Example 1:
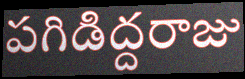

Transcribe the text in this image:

పగిడిద్దరాజు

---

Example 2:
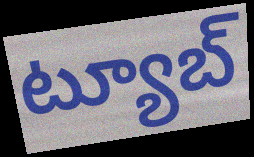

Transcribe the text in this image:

ట్యూబ్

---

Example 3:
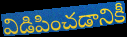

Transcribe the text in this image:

విడిపించడానికీ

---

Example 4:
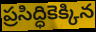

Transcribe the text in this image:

ప్రసిద్ధికెక్కిన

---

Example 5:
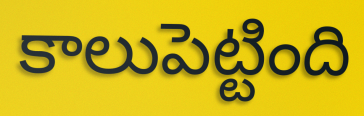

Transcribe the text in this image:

కాలుపెట్టింది